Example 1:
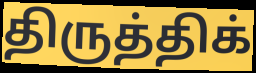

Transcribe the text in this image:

திருத்திக்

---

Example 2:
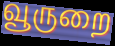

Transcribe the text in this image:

வூருறை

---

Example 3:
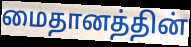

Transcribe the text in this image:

மைதானத்தின்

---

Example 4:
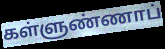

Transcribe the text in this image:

கள்ளுண்ணாப்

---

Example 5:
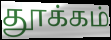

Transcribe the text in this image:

தூக்கம்